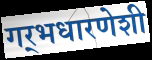
गर्भधारणेशी